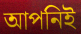
আপনিই